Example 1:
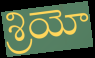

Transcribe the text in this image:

శ్రియో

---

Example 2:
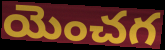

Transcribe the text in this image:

యెంచగ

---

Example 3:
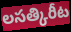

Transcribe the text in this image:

లసత్కిరీట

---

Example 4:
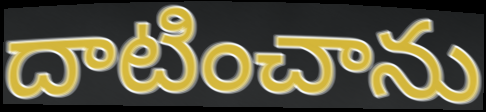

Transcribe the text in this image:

దాటించాను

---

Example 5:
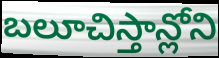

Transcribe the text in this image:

బలూచిస్తాన్లోని